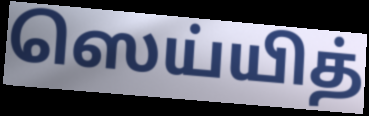
ஸெய்யித்